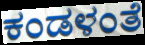
ಕಂಡಳಂತೆ